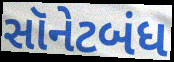
સૉનેટબંધ